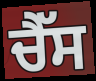
ਚੈੱਸ